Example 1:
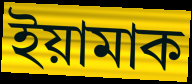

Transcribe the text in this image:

ইয়ামাক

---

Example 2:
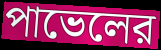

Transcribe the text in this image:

পাভেলের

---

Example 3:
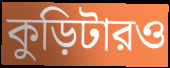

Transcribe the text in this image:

কুড়িটারও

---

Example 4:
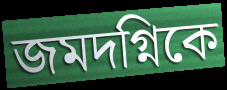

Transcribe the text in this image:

জমদগ্নিকে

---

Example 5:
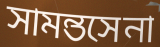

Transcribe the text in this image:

সামন্তসেনা